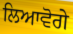
ਲਿਆਵੋਗੇ